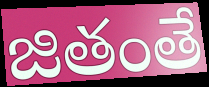
జితంతే